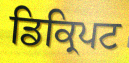
ਡਿਕ੍ਰਿਪਟ